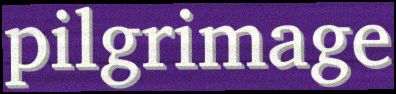
pilgrimage